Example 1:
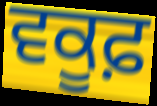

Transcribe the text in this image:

ਵਕੂਫ਼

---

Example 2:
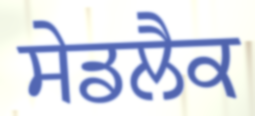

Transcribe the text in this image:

ਸੇਡਲੈਕ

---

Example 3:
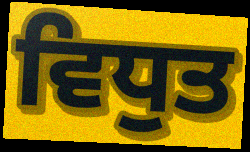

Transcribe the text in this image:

ਵਿਧੁਤ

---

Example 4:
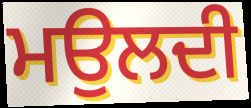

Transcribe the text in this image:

ਮਉਲਦੀ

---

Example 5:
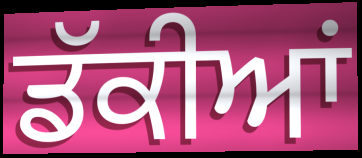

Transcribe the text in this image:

ਡੱਕੀਆਂ